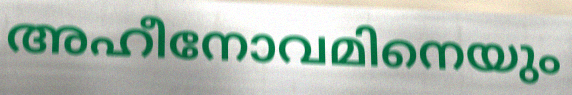
അഹീനോവമിനെയും